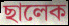
ছালেক